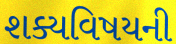
શક્યવિષયની